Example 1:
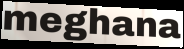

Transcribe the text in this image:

meghana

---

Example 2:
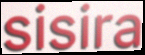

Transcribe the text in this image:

sisira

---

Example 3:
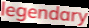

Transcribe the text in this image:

legendary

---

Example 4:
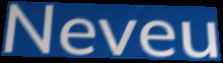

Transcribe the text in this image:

Neveu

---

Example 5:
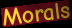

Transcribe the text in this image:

Morals